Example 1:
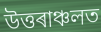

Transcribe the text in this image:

উত্তৰাঞ্চলত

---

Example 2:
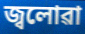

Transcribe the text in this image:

জ্বলোৱা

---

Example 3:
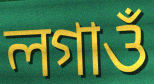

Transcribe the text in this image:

লগাওঁ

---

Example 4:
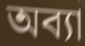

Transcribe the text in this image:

অব্যা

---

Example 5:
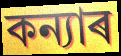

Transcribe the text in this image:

কন্যাৰ